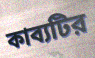
কাব্যটির